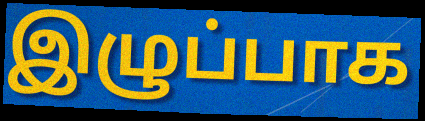
இழுப்பாக